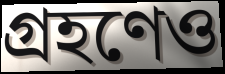
গ্রহণেও